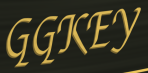
GGKEY